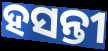
ହସନ୍ତୀ